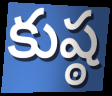
కుష్ఠ